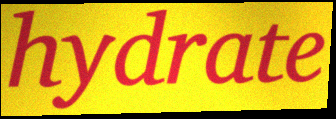
hydrate